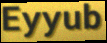
Eyyub